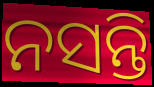
ନସନ୍ତି